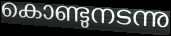
കൊണ്ടുനടന്നു